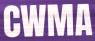
CWMA